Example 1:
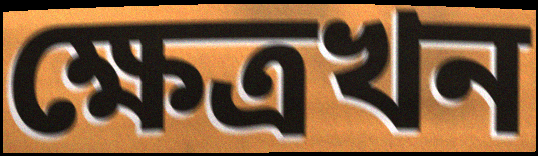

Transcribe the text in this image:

ক্ষেত্ৰখন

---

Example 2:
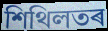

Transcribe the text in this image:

শিথিলতৰ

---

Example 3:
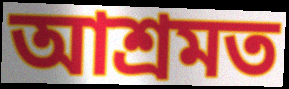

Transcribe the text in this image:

আশ্ৰমত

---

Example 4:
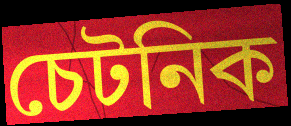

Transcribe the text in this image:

চেটনিক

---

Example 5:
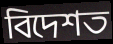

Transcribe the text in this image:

বিদেশত